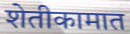
शेतीकामात